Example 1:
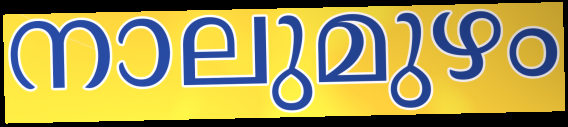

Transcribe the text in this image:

നാലുമുഴം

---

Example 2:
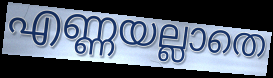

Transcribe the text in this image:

എണ്ണയല്ലാതെ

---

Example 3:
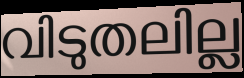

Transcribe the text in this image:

വിടുതലില്ല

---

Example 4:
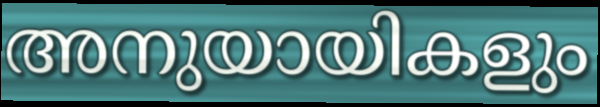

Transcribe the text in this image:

അനുയായികളും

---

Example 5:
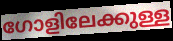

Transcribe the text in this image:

ഗോളിലേക്കുള്ള